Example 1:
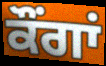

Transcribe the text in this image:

ਕੌਂਗਾਂ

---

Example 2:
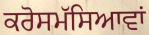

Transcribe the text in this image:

ਕਰੋਸਮੱਸਿਆਵਾਂ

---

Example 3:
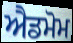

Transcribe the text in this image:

ਐਡਮੋਮ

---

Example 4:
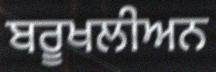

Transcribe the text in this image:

ਬਰੂਖਲੀਅਨ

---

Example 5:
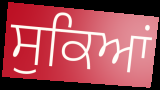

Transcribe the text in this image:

ਸੁਕਿਆਂ